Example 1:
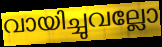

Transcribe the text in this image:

വായിച്ചുവല്ലോ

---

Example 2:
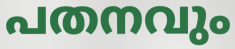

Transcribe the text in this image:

പതനവും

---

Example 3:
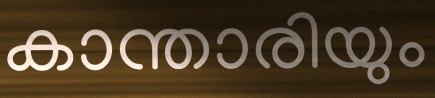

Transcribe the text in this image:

കാന്താരിയും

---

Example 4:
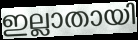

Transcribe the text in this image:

ഇല്ലാതായി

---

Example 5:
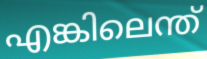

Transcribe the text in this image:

എങ്കിലെന്ത്